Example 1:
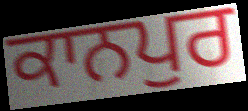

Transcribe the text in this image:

ਕਾਨਪੁਰ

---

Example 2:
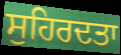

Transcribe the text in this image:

ਸੁਹਿਰਦਤਾ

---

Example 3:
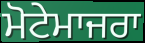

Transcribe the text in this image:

ਮੋਟੇਮਾਜਰਾ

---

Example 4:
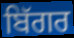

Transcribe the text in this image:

ਬਿੱਗਰ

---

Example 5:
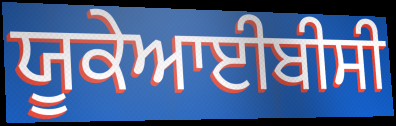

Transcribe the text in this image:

ਯੂਕੇਆਈਬੀਸੀ